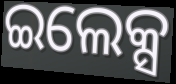
ଇଲେକ୍ସ